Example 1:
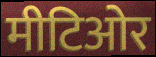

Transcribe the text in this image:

मीटिओर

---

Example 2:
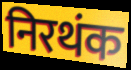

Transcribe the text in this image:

निरथंक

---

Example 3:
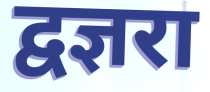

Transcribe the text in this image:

द्वज्ञरा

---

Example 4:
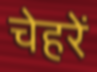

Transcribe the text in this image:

चेहरें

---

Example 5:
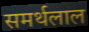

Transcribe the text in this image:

समर्थलाल